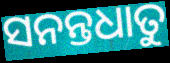
ସନନ୍ତଧାତୁ